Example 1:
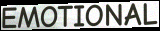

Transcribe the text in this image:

EMOTIONAL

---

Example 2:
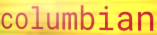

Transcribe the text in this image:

columbian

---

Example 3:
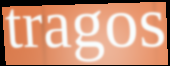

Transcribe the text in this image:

tragos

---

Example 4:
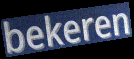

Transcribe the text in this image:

bekeren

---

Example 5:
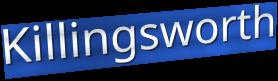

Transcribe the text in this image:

Killingsworth